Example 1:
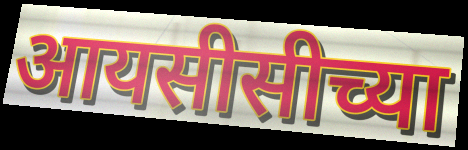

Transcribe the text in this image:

आयसीसीच्या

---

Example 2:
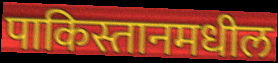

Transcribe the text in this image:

पाकिस्तानमधील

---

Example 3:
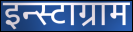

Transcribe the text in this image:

इन्स्टाग्राम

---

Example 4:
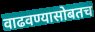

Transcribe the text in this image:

वाढवण्यासोबतच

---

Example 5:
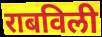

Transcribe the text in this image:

राबविली